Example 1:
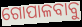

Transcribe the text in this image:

ଗୋପାଳବାବୁ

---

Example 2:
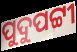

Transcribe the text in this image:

ପୁଦୁପଟ୍ଟୀ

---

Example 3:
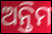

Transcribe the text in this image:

ଅନ୍ତିମ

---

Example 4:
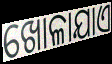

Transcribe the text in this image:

ଖୋଳାଯାଏ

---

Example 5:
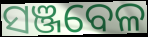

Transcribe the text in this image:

ସଞ୍ଜବେଳ